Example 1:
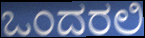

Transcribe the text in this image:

ಒಂದರಲಿ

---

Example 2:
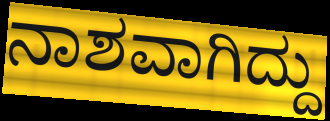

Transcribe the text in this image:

ನಾಶವಾಗಿದ್ದು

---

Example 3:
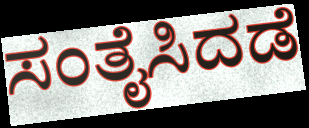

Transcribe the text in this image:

ಸಂತೈಸಿದಡೆ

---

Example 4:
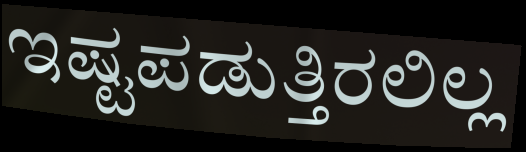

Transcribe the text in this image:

ಇಷ್ಟಪಡುತ್ತಿರಲಿಲ್ಲ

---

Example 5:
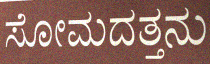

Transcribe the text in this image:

ಸೋಮದತ್ತನು